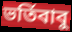
ভর্তিবাবু